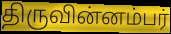
திருவின்னம்பர்